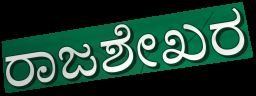
ರಾಜಶೇಖರ